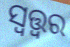
ସ୍ୱତ୍ତ୍ୱର